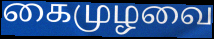
கைமுழவை